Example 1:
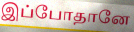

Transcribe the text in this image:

இப்போதானே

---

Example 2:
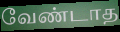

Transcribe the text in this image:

வேண்டாத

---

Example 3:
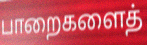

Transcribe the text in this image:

பாறைகளைத்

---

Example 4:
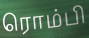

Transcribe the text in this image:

ரொம்பி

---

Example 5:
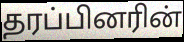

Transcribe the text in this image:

தரப்பினரின்